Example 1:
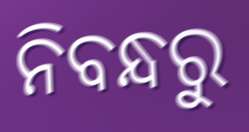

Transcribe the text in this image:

ନିବନ୍ଧରୁ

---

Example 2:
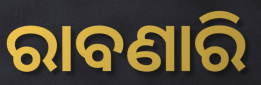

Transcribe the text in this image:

ରାବଣାରି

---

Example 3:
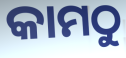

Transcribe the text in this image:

କାମଠୁ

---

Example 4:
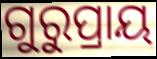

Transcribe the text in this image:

ଗୁରୁପ୍ରାୟ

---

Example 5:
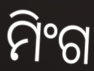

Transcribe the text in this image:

ମିଂଗ